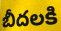
బీదలకి